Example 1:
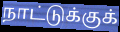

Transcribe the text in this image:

நாட்டுக்குக்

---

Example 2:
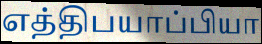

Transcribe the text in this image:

எத்திபயாப்பியா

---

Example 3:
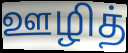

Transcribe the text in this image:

ஊழித்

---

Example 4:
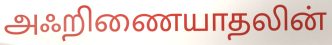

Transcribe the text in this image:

அஃறிணையாதலின்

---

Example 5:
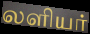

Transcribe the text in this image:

லளியர்